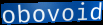
obovoid